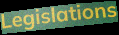
Legislations